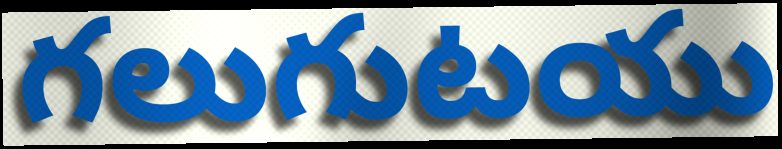
గలుగుటయు